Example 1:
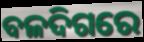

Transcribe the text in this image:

ବଳଦିଗରେ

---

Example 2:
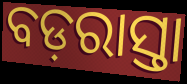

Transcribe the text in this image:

ବଡ଼ରାସ୍ତା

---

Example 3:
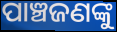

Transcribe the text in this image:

ପାଞ୍ଚଜଣଙ୍କୁ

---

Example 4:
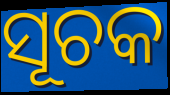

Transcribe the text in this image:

ସୂଚକ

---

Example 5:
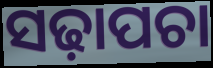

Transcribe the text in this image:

ସଢ଼ାପଚା